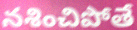
నశించిపోతే